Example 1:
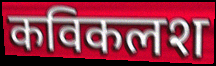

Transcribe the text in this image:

कविकलश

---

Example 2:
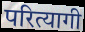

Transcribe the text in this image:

परित्यागी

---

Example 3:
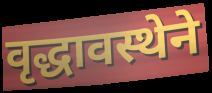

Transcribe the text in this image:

वृद्धावस्थेने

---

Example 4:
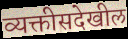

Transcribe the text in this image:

व्यक्तीसदेखील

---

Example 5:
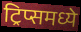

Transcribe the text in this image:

ट्रिप्समध्ये